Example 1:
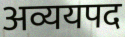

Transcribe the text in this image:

अव्ययपद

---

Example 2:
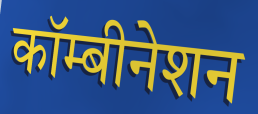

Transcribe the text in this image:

कॉम्बीनेशन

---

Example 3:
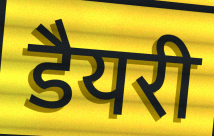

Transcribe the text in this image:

डैयरी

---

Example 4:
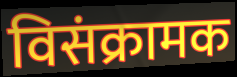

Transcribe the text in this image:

विसंक्रामक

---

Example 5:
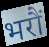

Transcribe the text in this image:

भरौं